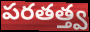
పరతత్త్వ